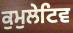
ਕੁਮੁਲੇਟਿਵ